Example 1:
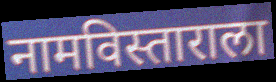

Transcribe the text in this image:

नामविस्ताराला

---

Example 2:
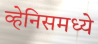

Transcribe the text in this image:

व्हेनिसमध्ये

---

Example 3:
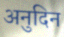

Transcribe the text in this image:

अनुदिन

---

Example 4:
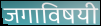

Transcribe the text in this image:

जगाविषयी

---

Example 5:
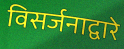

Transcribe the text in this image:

विसर्जनाद्वारे